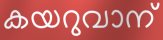
കയറുവാന്